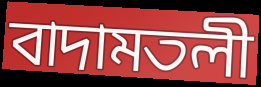
বাদামতলী